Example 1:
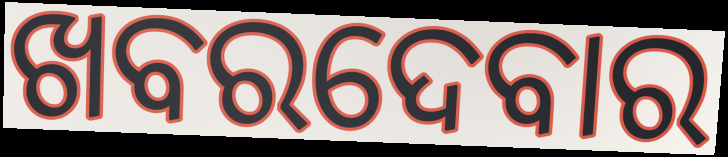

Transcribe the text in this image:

ଖବରଦେବାର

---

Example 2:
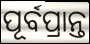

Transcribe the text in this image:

ପୂର୍ବପ୍ରାନ୍ତ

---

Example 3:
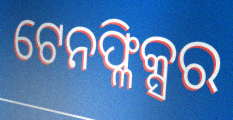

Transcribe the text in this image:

ଟେନଫ୍ଳିକ୍ସର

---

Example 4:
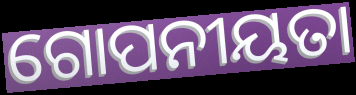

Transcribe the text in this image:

ଗୋପନୀୟତା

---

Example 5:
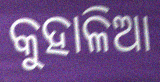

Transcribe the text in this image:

କୁହାଳିଆ